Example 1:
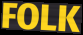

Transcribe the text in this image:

FOLK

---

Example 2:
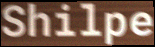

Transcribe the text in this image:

Shilpe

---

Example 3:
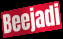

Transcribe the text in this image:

Beejadi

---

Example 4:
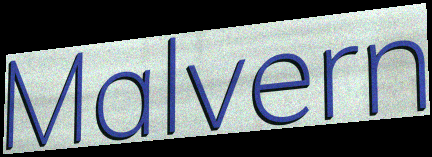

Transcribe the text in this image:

Malvern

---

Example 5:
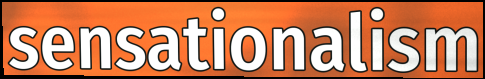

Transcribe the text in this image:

sensationalism